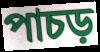
পাচড়